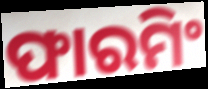
ଫାରମିଂ